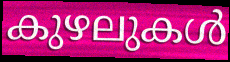
കുഴലുകൾ